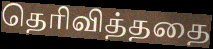
தெரிவித்ததை